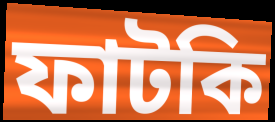
ফাটকি